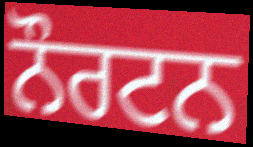
ਨੌਰਟਨ